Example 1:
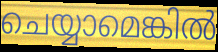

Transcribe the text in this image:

ചെയ്യാമെങ്കിൽ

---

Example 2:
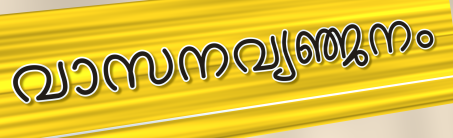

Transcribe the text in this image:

വാസനവ്യഞ്ജനം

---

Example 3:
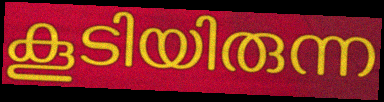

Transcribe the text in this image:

കൂടിയിരുന്ന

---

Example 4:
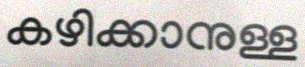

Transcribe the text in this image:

കഴിക്കാനുള്ള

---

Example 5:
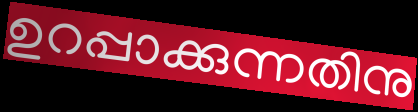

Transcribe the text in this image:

ഉറപ്പാക്കുന്നതിനു